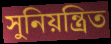
সুনিয়ন্ত্ৰিত